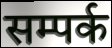
सम्पर्क